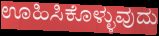
ಊಹಿಸಿಕೊಳ್ಳುವುದು